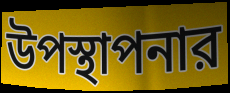
উপস্থাপনার